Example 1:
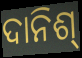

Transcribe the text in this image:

ଦାନିଶ୍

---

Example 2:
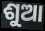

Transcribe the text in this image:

ଶୁଆ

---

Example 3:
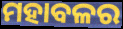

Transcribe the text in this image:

ମହାବଳର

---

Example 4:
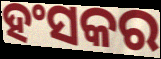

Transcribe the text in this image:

ହଂସକର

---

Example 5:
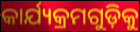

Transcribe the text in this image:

କାର୍ଯ୍ୟକ୍ରମଗୁଡ଼ିକୁ